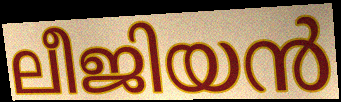
ലീജിയൻ